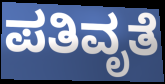
ಪತಿವೃತೆ